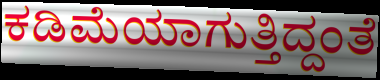
ಕಡಿಮೆಯಾಗುತ್ತಿದ್ದಂತೆ